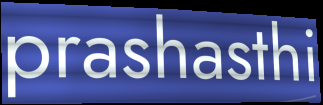
prashasthi